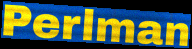
Perlman